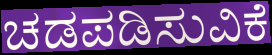
ಚಡಪಡಿಸುವಿಕೆ